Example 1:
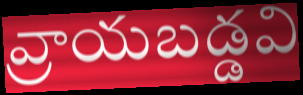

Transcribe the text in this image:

వ్రాయబడ్డవి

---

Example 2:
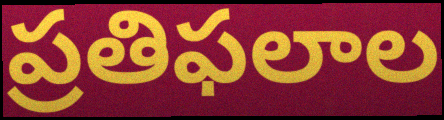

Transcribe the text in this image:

ప్రతిఫలాల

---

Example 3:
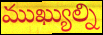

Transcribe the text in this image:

ముఖ్యుల్ని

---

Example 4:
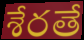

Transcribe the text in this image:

శేరతే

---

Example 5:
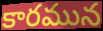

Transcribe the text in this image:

కారమున